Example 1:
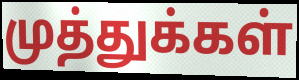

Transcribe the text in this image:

முத்துக்கள்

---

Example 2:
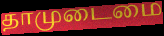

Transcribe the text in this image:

தாமுடைமை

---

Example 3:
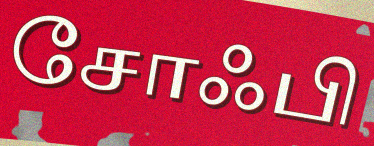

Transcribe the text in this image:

சோஃபி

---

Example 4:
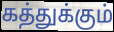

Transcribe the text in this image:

கத்துக்கும்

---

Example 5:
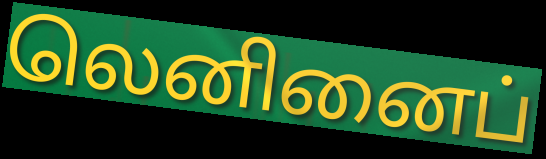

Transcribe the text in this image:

லெனினைப்